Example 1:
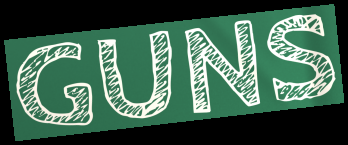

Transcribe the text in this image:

GUNS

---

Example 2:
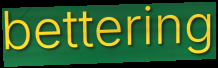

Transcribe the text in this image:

bettering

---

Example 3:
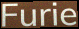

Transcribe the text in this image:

Furie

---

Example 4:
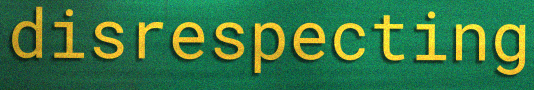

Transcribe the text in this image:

disrespecting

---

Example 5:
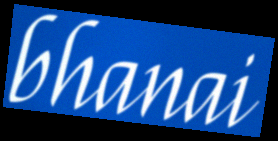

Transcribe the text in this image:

bhanai